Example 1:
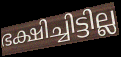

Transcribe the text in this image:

ഭക്ഷിച്ചിട്ടില്ല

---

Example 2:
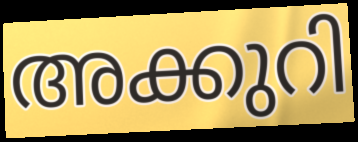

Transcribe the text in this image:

അക്കുറി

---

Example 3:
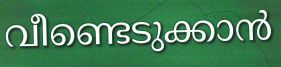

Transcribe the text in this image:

വീണ്ടെടുക്കാൻ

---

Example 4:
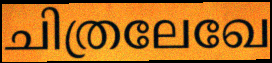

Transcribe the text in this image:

ചിത്രലേഖേ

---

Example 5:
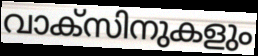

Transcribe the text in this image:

വാക്സിനുകളും